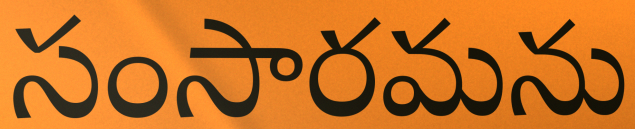
సంసారమను